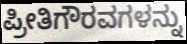
ಪ್ರೀತಿಗೌರವಗಳನ್ನು